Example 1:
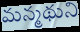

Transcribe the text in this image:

మన్మథుని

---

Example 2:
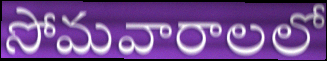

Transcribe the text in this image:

సోమవారాలలో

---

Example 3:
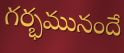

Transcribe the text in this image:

గర్భమునందే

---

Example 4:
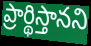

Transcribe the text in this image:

ప్రార్థిస్తానని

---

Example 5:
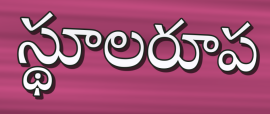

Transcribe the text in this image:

స్థూలరూప